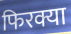
फिरक्या